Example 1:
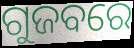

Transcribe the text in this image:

ଗୁଜବରେ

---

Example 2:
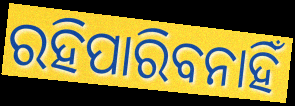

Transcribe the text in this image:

ରହିପାରିବନାହିଁ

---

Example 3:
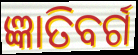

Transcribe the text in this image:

ଜ୍ଞାତିବର୍ଗ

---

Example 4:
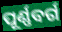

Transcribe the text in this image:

ପୂର୍ଣ୍ଣବର୍ଗ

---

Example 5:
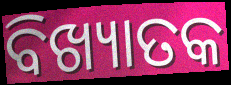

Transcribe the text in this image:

ବିଖ୍ୟାତକ